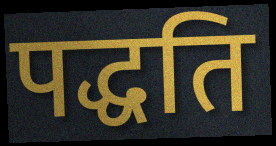
पद्धति